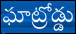
ఘాట్రోడ్డు